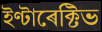
ইণ্টাৰেক্টিভ